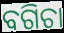
ବଗିଚା